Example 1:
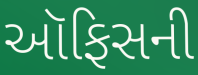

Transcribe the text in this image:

ઑફિસની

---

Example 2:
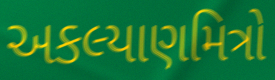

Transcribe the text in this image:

અકલ્યાણમિત્રો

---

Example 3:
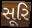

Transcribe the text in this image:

સૂરિ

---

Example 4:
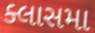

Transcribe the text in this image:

ક્લાસમા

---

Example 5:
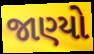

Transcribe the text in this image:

જાણ્યો